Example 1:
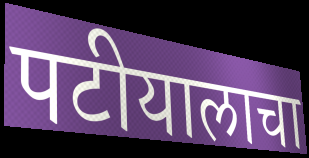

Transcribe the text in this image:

पटीयालाचा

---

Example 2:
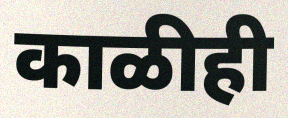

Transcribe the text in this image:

काळीही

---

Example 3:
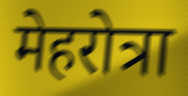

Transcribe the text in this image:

मेहरोत्रा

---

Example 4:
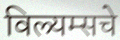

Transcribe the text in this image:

विल्यम्सचे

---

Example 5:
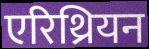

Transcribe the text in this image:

एरिथ्रियन